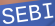
SEBI